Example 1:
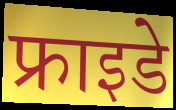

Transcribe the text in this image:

फ्राइडे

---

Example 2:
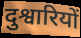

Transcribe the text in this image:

दुश्वारियों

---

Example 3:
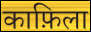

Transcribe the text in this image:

काफ़िला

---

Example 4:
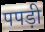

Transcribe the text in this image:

पपड़ी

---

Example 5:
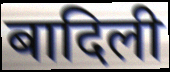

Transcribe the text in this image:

बादिली